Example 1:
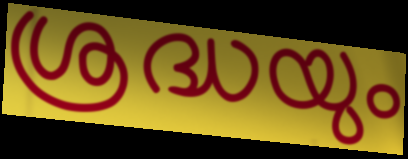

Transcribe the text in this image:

ശ്രദ്ധയും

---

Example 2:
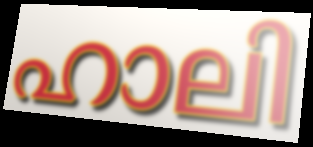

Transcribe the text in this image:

ഹാലി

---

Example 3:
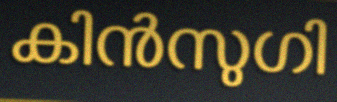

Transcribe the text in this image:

കിൻസുഗി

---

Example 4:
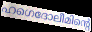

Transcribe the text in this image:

ഹഗെദോലീമിന്റെ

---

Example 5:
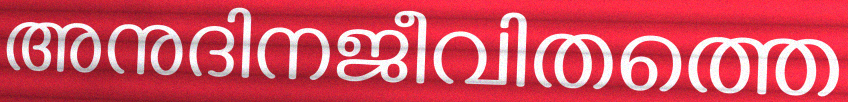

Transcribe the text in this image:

അനുദിനജീവിതത്തെ